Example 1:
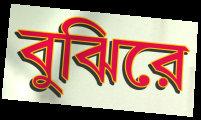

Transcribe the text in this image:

বুঝিরে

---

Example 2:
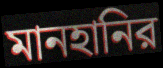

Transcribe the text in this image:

মানহানির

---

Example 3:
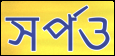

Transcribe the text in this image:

সর্পও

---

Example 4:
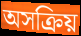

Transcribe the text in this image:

অসক্রিয়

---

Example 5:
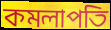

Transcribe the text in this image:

কমলাপতি